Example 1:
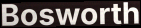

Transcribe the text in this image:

Bosworth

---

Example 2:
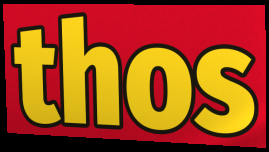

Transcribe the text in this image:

thos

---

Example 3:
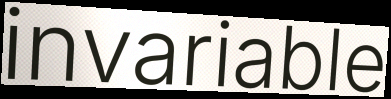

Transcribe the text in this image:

invariable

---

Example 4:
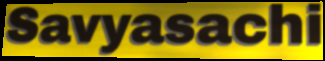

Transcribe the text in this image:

Savyasachi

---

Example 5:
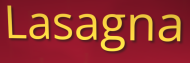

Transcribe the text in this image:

Lasagna